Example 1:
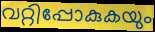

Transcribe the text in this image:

വറ്റിപ്പോകുകയും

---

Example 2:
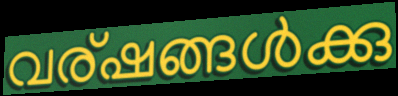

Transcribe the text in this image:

വര്ഷങ്ങൾക്കു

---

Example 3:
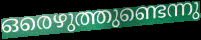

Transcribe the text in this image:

ഒരെഴുത്തുണ്ടെന്നു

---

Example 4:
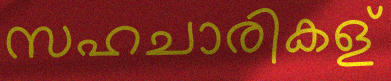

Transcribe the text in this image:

സഹചാരികള്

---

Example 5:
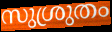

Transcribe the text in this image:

സുശ്രുതം